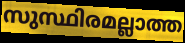
സുസ്ഥിരമല്ലാത്ത